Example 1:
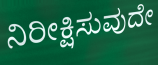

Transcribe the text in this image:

ನಿರೀಕ್ಷಿಸುವುದೇ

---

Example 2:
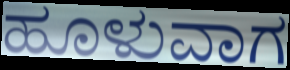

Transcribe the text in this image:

ಹೂಳುವಾಗ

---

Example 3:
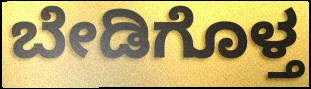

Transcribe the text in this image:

ಬೇಡಿಗೊಳ್ತ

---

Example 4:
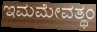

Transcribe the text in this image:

ಇಮಮೇವತ್ಥಂ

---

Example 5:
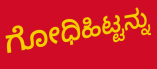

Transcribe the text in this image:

ಗೋಧಿಹಿಟ್ಟನ್ನು